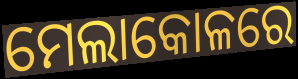
ମେଲାକୋଳରେ